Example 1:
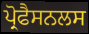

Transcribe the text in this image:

ਪ੍ਰੋਫੈਸਨਲਸ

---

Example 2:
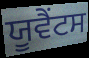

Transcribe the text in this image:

ਯੂਵੈਂਟਸ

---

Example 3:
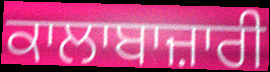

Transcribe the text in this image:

ਕਾਲਾਬਾਜ਼ਾਰੀ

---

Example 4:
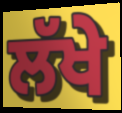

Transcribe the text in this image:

ਲੱਖੇ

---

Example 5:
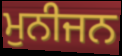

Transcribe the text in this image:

ਮੁਨੀਜਨ